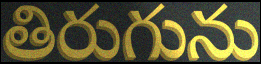
తిరుగును